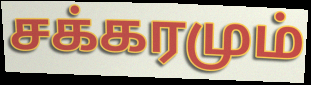
சக்கரமும்